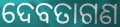
ଦେବତାଗଣ